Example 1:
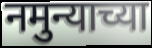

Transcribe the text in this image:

नमुन्याच्या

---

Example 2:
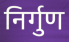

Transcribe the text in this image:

निर्गुण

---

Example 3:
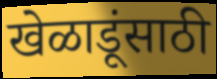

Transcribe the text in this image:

खेळाडूंसाठी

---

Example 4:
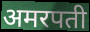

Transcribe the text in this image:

अमरपती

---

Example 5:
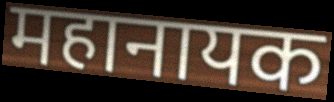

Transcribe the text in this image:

महानायक